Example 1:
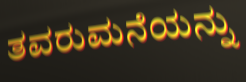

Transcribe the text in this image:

ತವರುಮನೆಯನ್ನು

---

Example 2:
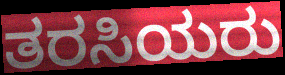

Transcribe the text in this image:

ತರಸಿಯರು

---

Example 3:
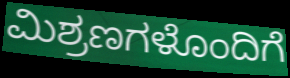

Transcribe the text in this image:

ಮಿಶ್ರಣಗಳೊಂದಿಗೆ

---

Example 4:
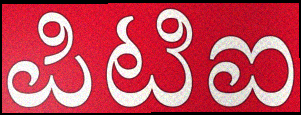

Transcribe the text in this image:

ಪಿಟಿಐ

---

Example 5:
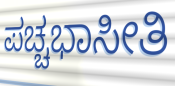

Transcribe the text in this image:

ಪಚ್ಚಭಾಸೀತಿ